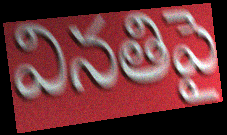
వినతిపై